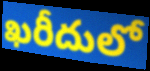
ఖరీదులో